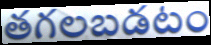
తగలబడటం